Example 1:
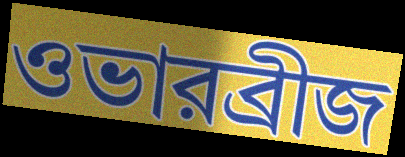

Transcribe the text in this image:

ওভারব্রীজ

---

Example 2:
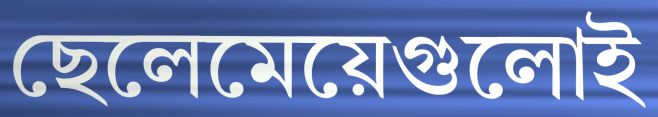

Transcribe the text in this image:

ছেলেমেয়েগুলোই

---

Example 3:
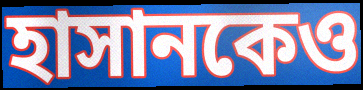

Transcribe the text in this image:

হাসানকেও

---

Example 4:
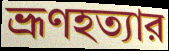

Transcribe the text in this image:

ভ্রূণহত্যার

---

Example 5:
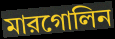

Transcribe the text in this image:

মারগোলিন